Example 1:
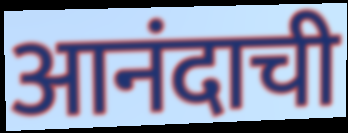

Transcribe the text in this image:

आनंदाची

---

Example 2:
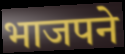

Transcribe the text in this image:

भाजपने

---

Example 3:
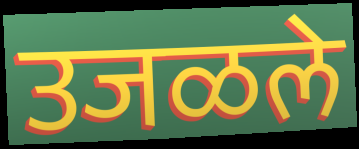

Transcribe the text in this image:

उजळले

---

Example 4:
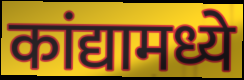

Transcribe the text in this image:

कांद्यामध्ये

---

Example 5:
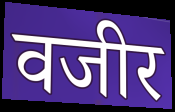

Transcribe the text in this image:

वजीर